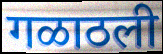
गळाठली